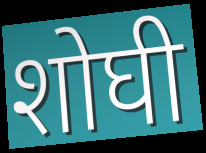
शोघी